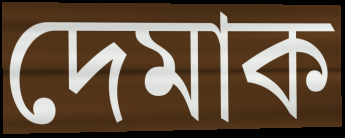
দেমাক